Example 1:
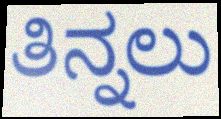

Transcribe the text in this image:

ತಿನ್ನಲು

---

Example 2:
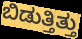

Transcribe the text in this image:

ಬಿಡುತ್ತಿತ್ತು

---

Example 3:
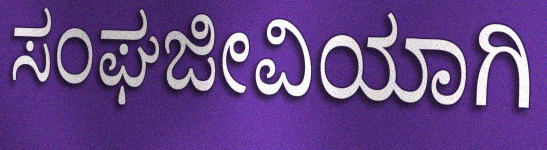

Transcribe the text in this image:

ಸಂಘಜೀವಿಯಾಗಿ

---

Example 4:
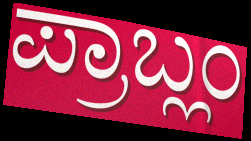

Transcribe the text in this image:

ಪ್ರಾಬ್ಲಂ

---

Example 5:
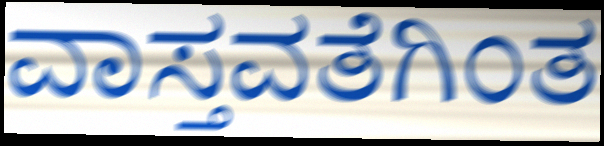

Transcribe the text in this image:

ವಾಸ್ತವತೆಗಿಂತ